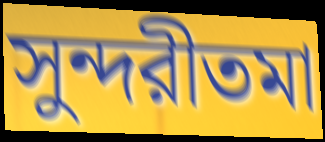
সুন্দরীতমা